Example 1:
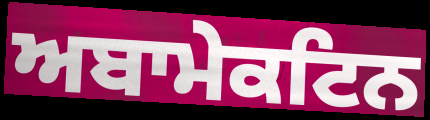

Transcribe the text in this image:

ਅਬਾਮੇਕਟਿਨ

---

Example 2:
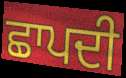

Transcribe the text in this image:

ਛਾਪਦੀ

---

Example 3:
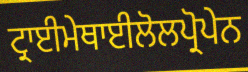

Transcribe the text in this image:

ਟ੍ਰਾਈਮੇਥਾਈਲੋਲਪ੍ਰੋਪੇਨ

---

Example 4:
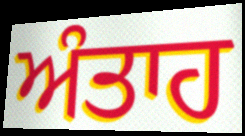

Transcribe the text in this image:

ਅੰਤਾਹ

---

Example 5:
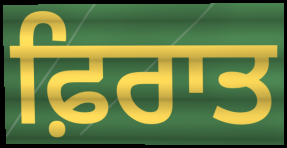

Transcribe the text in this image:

ਫ਼ਿਰਾਤ